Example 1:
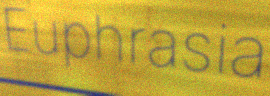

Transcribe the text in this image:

Euphrasia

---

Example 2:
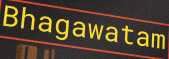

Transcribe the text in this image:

Bhagawatam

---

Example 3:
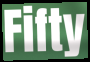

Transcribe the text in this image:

Fifty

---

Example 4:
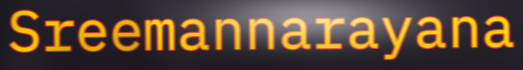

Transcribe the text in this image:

Sreemannarayana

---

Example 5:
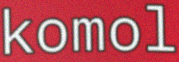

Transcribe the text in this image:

komol